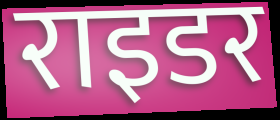
राइडर